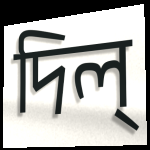
দিল্